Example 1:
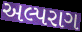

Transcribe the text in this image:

અલ્પરાગ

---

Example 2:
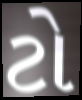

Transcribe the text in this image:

ટો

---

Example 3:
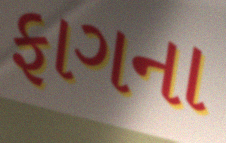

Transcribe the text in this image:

ફાગના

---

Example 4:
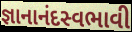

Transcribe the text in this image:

જ્ઞાનાનંદસ્વભાવી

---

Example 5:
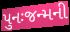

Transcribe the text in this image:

પુનઃજન્મની